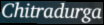
Chitradurga